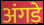
अंगडे